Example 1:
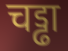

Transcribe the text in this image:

चड्ढा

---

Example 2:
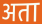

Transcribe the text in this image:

अता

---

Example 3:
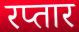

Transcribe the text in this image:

रप्तार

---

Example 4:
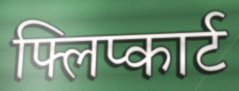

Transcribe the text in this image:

फ्लिप्कार्ट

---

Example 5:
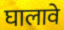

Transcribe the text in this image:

घालावे